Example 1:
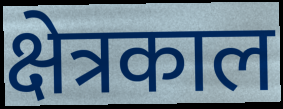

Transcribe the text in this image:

क्षेत्रकाल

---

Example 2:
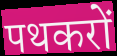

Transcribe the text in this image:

पथकरों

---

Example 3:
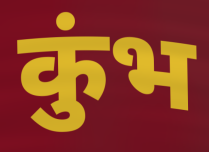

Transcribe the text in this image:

कुंभ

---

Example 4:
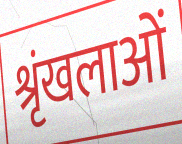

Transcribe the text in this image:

श्रृंखलाओं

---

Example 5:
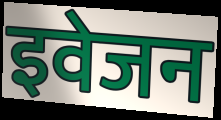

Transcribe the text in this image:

इवेजन